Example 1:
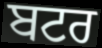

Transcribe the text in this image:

ਬਟਰ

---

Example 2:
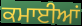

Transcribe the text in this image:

ਕਮਾਈਆਂ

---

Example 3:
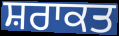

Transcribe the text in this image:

ਸ਼ਰਾਕਤ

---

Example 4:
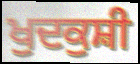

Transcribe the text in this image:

ਖੁਦਕੁਸ਼ੀ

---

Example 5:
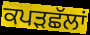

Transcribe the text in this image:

ਕਪੜਛੱਲਾਂ